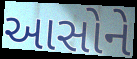
આસોને